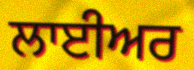
ਲਾਈਅਰ